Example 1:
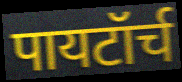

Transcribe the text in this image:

पायटॉर्च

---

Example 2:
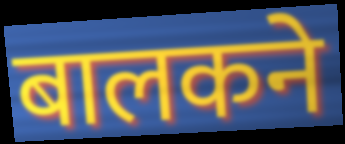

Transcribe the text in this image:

बालकने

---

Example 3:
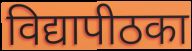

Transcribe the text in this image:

विद्यापीठका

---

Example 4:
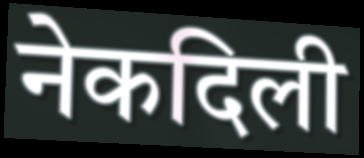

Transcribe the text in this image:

नेकदिली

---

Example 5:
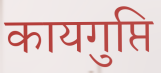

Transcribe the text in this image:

कायगुप्ति